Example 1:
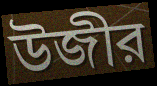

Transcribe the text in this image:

উজীর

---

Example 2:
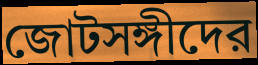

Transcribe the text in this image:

জোটসঙ্গীদের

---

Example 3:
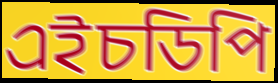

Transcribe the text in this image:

এইচডিপি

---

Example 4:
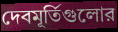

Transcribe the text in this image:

দেবমূর্তিগুলোর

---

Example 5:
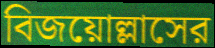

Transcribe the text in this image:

বিজয়োল্লাসের